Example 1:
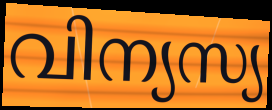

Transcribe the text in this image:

വിന്യസ്യ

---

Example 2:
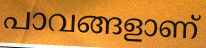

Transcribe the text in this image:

പാവങ്ങളാണ്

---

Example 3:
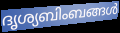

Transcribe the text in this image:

ദൃശ്യബിംബങ്ങൾ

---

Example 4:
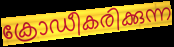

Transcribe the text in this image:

ക്രോഡീകരിക്കുന്ന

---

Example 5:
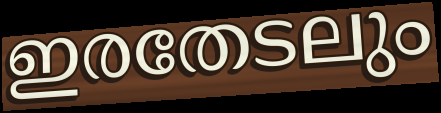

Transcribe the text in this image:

ഇരതേടലും